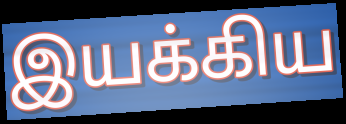
இயக்கிய